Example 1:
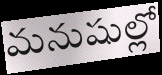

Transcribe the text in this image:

మనుషుల్లో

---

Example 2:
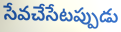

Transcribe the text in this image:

సేవచేసేటప్పుడు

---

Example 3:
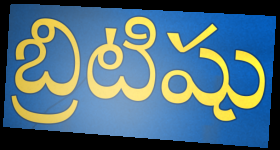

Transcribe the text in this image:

బ్రిటిషు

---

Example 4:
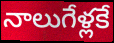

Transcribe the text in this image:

నాలుగేళ్లకే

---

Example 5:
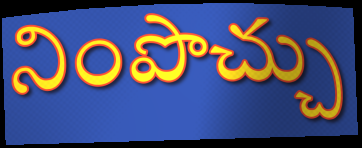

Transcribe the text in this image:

నింపొచ్చు